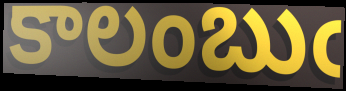
కాలంబుఁ